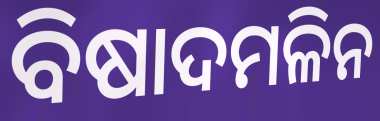
ବିଷାଦମଳିନ